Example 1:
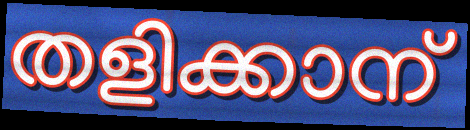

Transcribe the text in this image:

തളിക്കാന്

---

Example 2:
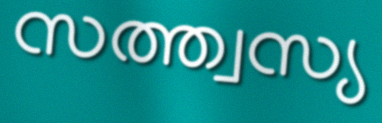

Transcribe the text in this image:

സത്ത്വസ്യ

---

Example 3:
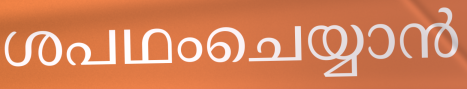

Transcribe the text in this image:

ശപഥംചെയ്യാൻ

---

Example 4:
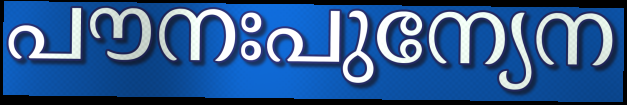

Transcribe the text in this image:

പൗനഃപുന്യേന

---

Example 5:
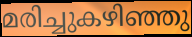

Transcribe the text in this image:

മരിച്ചുകഴിഞ്ഞു